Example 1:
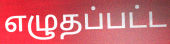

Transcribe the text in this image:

எழுதப்பட்ட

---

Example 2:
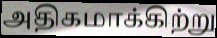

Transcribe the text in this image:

அதிகமாக்கிற்று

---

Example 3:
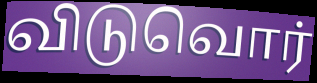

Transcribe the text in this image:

விடுவொர்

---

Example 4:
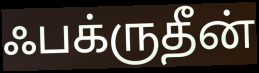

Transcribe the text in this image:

ஃபக்ருதீன்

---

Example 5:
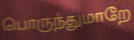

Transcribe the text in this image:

பொருந்துமாறே